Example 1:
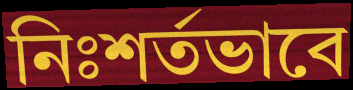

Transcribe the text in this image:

নিঃশর্তভাবে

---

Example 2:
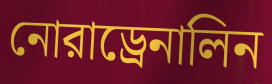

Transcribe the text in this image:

নোরাড্রেনালিন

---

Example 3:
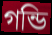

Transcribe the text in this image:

গন্ডি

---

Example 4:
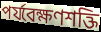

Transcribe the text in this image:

পর্যবেক্ষণশক্তি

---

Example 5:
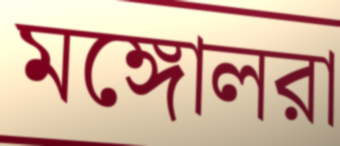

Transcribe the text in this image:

মঙ্গোলরা